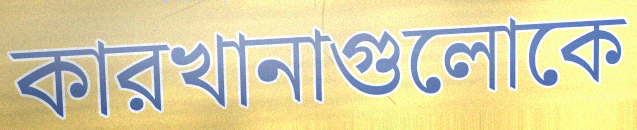
কারখানাগুলোকে